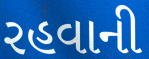
રહવાની